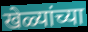
खेळ्यांच्या